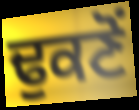
ਢੁਕਣੋਂ